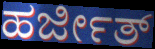
ಹರ್ಜೀತ್